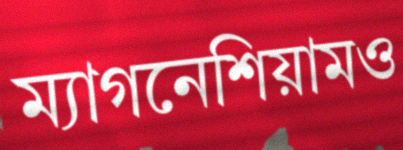
ম্যাগনেশিয়ামও